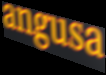
angusa